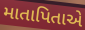
માતાપિતાએ